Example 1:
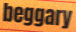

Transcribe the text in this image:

beggary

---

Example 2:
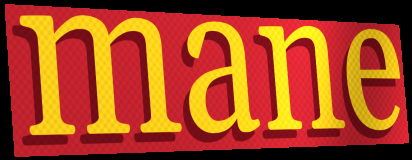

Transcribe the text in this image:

mane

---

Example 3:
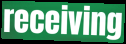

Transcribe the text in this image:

receiving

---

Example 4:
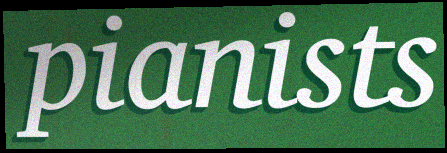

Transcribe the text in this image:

pianists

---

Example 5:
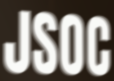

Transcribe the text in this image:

JSOC